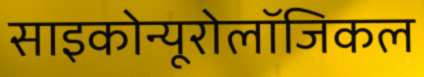
साइकोन्यूरोलॉजिकल